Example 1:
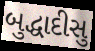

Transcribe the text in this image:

બુદ્ધાદીસુ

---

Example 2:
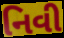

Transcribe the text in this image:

નિવી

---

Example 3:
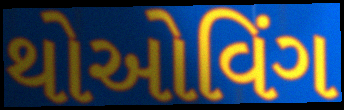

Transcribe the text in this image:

થોઓવિંગ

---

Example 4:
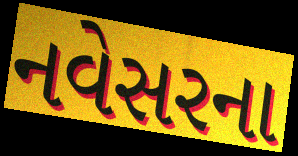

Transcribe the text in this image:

નવેસરના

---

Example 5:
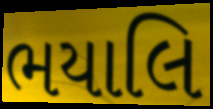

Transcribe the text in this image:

ભયાલિ